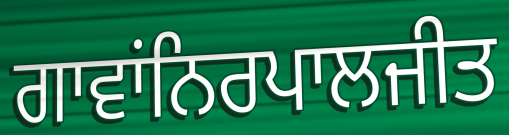
ਗਾਵਾਂਨਿਰਪਾਲਜੀਤ